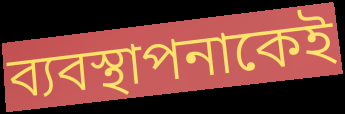
ব্যবস্থাপনাকেই